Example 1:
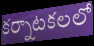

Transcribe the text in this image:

కర్నాటకలలో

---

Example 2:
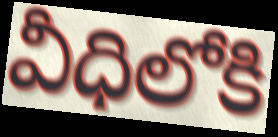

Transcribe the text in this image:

వీధిలోకి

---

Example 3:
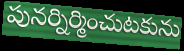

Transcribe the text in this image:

పునర్నిర్మించుటకును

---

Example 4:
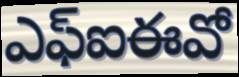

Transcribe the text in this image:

ఎఫ్ఐఈవో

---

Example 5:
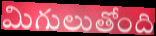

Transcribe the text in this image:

మిగులుతోంది